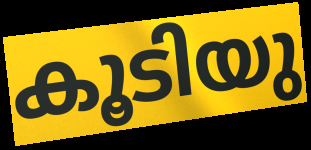
കൂടിയു